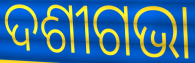
ଦଶୀଗଭା